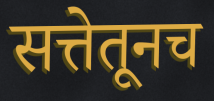
सत्तेतूनच